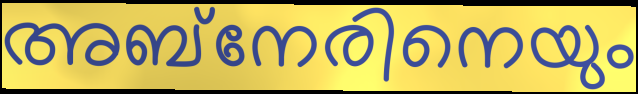
അബ്നേരിനെയും